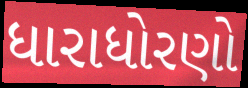
ધારાધોરણો